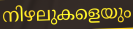
നിഴലുകളെയും